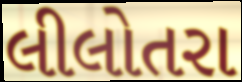
લીલોતરા